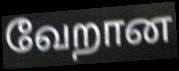
வேறான